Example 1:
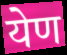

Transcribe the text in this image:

येण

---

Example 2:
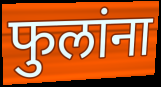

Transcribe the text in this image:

फुलांना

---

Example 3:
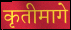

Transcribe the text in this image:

कृतीमागे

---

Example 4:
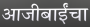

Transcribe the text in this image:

आजीबाईंचा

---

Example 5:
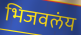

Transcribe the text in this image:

भिजवलंय